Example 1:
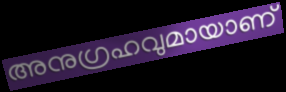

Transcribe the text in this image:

അനുഗ്രഹവുമായാണ്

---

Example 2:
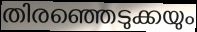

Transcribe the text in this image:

തിരഞ്ഞെടുക്കയും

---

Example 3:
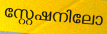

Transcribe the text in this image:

സ്റ്റേഷനിലോ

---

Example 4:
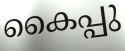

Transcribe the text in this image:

കൈപ്പു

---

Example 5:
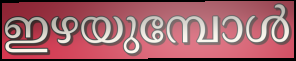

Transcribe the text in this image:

ഇഴയുമ്പോൾ